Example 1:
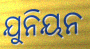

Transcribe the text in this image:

ଯୁନିୟନ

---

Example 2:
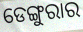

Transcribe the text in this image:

ଡେଙ୍ଗୁରାର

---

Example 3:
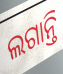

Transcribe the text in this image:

ଲଗାନ୍ତି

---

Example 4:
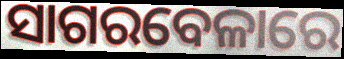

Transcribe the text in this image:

ସାଗରବେଳାରେ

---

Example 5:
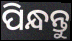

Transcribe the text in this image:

ପିନ୍ଧନ୍ତୁ